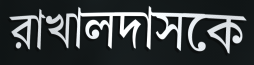
রাখালদাসকে